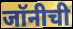
जॉनीची